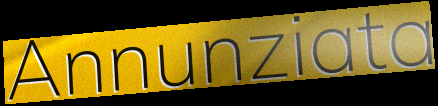
Annunziata